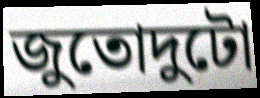
জুতোদুটো